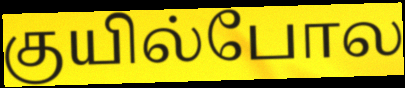
குயில்போல